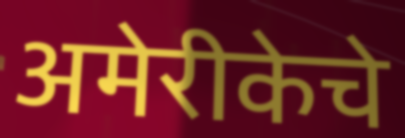
अमेरीकेचे